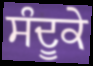
ਸੰਦੂਕੇ